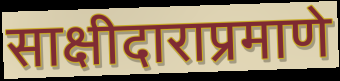
साक्षीदाराप्रमाणे